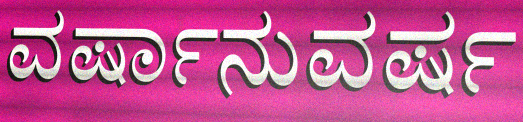
ವರ್ಷಾನುವರ್ಷ